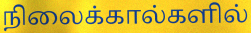
நிலைக்கால்களில்